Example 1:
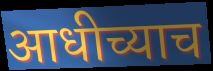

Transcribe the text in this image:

आधीच्याच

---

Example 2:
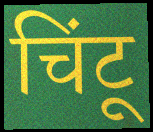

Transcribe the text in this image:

चिंटू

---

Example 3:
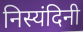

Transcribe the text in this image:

निस्यंदिनी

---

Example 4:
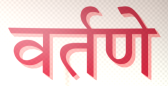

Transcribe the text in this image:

वर्तणे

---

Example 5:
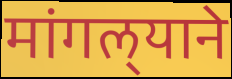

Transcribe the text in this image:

मांगल्याने